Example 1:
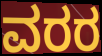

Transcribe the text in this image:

ವರರ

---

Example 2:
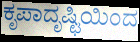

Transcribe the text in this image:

ಕೃಪಾದೃಷ್ಟಿಯಿಂದ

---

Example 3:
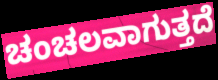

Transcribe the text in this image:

ಚಂಚಲವಾಗುತ್ತದೆ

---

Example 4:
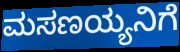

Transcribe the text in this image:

ಮಸಣಯ್ಯನಿಗೆ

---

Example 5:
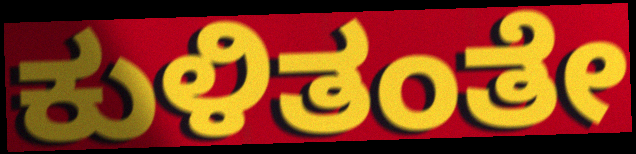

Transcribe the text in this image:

ಕುಳಿತಂತೇ